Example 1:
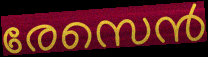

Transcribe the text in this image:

രേസെൻ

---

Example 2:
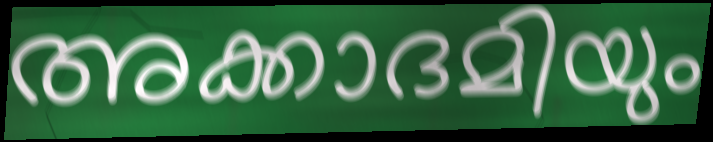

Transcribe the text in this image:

അക്കാദമിയും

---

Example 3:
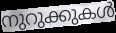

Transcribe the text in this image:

നുറുക്കുകൾ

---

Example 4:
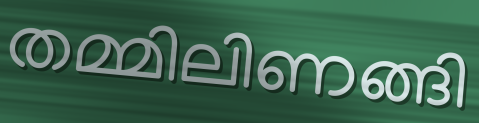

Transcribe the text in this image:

തമ്മിലിണങ്ങി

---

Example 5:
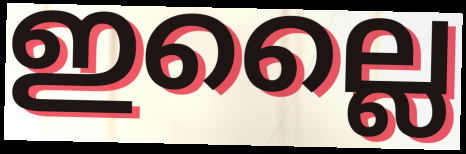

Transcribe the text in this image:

ഇല്ലൈ